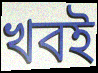
খবই